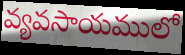
వ్యవసాయములో